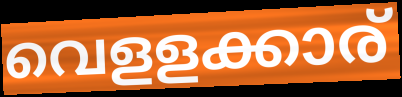
വെളളക്കാര്